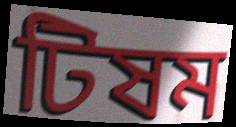
টিষম